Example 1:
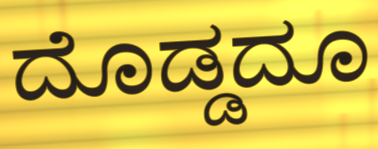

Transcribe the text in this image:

ದೊಡ್ಡದೂ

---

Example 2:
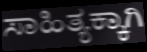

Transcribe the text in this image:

ಸಾಹಿತ್ಯಕ್ಕಾಗಿ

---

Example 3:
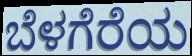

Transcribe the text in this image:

ಬೆಳಗೆರೆಯ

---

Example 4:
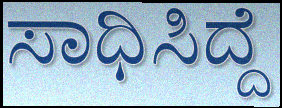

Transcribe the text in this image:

ಸಾಧಿಸಿದ್ದೆ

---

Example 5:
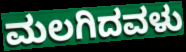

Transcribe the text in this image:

ಮಲಗಿದವಳು